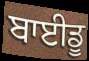
ਬਾਈਡੂ